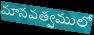
మానవత్వములో